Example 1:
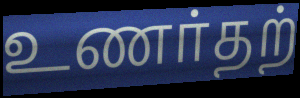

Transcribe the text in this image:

உணர்தற்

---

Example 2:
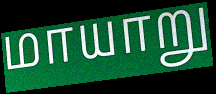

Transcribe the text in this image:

மாயாறு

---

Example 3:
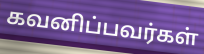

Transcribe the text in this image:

கவனிப்பவர்கள்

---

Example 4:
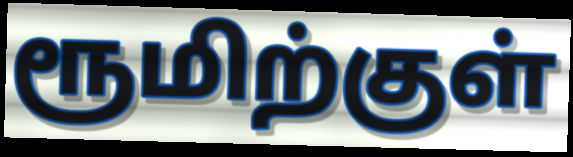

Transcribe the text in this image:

ரூமிற்குள்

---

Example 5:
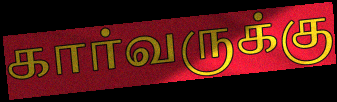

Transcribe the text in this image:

கார்வருக்கு